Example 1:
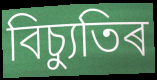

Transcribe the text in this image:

বিচ্যুতিৰ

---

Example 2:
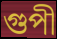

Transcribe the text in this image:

গুপী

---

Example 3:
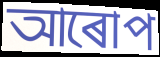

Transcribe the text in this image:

আৰোপ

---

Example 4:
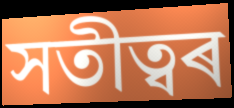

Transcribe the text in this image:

সতীত্বৰ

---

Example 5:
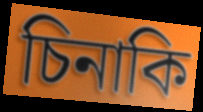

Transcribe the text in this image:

চিনাকি